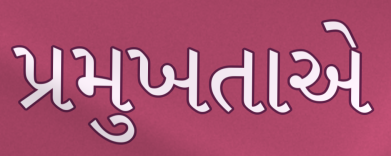
પ્રમુખતાએ